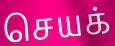
செயக்